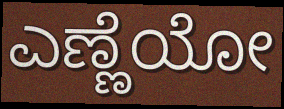
ಎಣ್ಣೆಯೋ